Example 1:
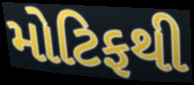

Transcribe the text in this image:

મોટિફથી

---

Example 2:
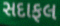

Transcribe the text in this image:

સદાફલ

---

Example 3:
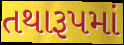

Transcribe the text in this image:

તથારૂપમાં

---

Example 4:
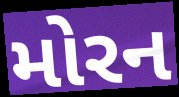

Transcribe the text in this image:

મોરન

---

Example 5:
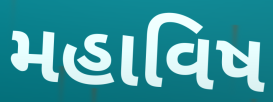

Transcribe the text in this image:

મહાવિષ